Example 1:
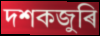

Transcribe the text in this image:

দশকজুৰি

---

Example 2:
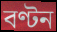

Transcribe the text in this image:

বণ্টন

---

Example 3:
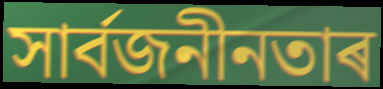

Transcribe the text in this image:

সাৰ্বজনীনতাৰ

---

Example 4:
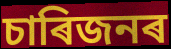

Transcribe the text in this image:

চাৰিজনৰ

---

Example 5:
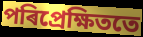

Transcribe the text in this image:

পৰিপ্ৰেক্ষিততে